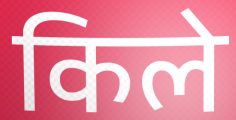
किले